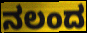
ನಲಂದ